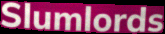
Slumlords